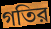
গতির